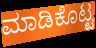
ಮಾಡಿಕೊಟ್ಟ